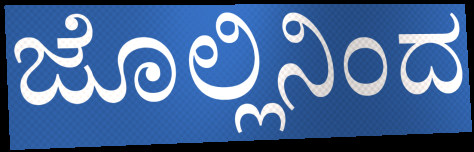
ಜೊಲ್ಲಿನಿಂದ